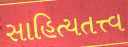
સાહિત્યતત્ત્વ